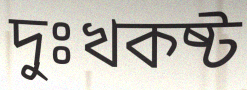
দুঃখকষ্ট